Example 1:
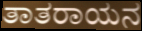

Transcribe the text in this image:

ತಾತರಾಯನ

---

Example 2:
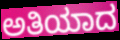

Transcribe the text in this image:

ಅತಿಯಾದ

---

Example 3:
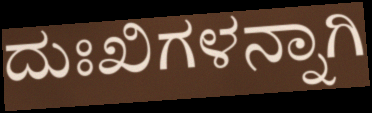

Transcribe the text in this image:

ದುಃಖಿಗಳನ್ನಾಗಿ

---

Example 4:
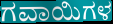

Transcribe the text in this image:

ಗವಾಯಿಗಳ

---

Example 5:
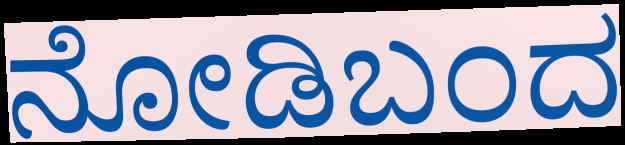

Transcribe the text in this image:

ನೋಡಿಬಂದ